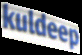
kuldeep